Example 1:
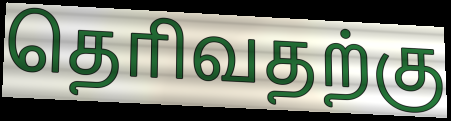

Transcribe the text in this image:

தெரிவதற்கு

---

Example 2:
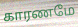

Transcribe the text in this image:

காரணமே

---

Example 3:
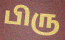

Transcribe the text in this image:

பிரு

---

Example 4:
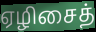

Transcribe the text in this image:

ஏழிசைத்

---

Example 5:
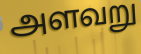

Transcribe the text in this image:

அளவறு